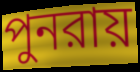
পুনরায়